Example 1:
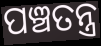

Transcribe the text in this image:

ପଞ୍ଚତନ୍ତ୍ର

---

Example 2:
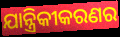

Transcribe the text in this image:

ଯାନ୍ତ୍ରିକୀକରଣର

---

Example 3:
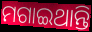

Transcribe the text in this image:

ମଗାଇଥାନ୍ତି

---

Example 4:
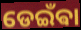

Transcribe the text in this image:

ଡେଇଁଵା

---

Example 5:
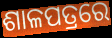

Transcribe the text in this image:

ଶାଳପତ୍ରରେ